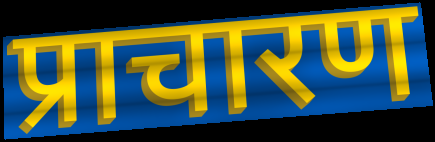
प्राचारण